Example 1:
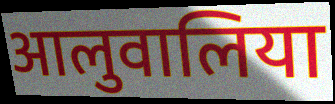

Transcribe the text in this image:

आलुवालिया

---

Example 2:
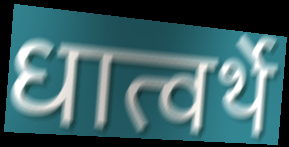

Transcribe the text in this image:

धात्वर्थे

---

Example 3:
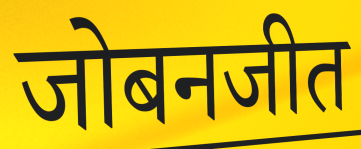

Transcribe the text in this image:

जोबनजीत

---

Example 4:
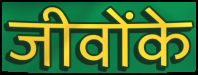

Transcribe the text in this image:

जीवोंके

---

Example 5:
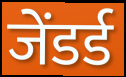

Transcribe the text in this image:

जेंडर्ड